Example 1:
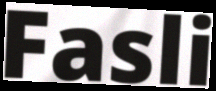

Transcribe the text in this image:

Fasli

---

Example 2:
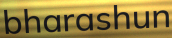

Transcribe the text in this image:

bharashun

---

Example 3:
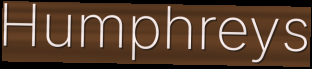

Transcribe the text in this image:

Humphreys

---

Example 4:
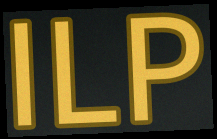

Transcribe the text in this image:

ILP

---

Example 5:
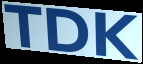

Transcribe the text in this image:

TDK